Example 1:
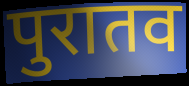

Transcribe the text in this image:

पुरातव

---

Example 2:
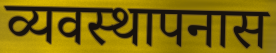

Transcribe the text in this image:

व्यवस्थापनास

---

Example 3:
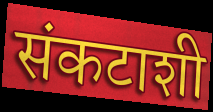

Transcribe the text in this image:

संकटाशी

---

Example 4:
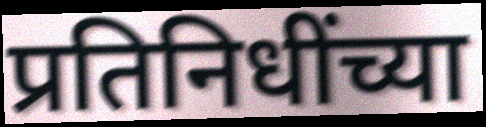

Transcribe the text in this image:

प्रतिनिधींच्या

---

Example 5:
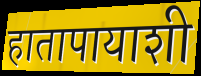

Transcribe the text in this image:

हातापायाशी